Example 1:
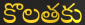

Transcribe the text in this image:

కొలతకు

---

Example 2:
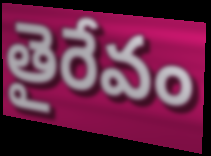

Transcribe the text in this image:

తైరేవం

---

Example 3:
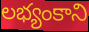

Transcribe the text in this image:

లభ్యంకాని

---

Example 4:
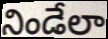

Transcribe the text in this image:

నిండేలా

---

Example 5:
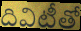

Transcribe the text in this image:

దివిటీతో